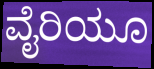
ವೈರಿಯೂ